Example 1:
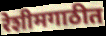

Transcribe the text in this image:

रेशीमगाठीत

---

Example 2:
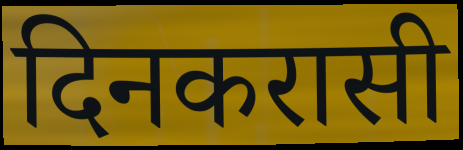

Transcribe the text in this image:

दिनकरासी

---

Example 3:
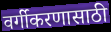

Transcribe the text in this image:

वर्गीकरणासाठी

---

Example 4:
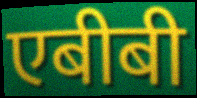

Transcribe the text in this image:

एबीबी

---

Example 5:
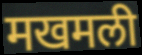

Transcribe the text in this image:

मखमली